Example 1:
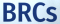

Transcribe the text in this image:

BRCs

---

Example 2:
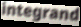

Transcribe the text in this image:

integrand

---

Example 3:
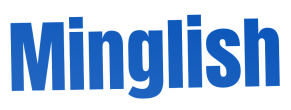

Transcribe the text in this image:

Minglish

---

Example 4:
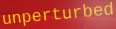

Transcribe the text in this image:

unperturbed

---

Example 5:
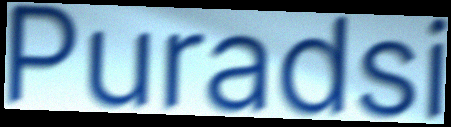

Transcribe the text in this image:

Puradsi